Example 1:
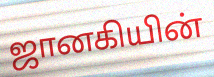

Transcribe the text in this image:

ஜானகியின்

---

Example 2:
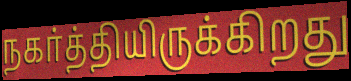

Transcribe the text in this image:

நகர்த்தியிருக்கிறது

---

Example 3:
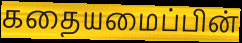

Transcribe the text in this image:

கதையமைப்பின்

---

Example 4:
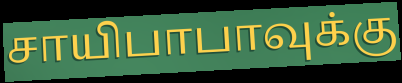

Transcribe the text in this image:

சாயிபாபாவுக்கு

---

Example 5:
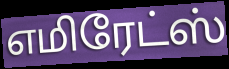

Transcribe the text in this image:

எமிரேட்ஸ்